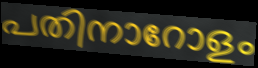
പതിനാറോളം